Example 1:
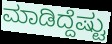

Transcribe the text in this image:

ಮಾಡಿದ್ದೆಷ್ಟು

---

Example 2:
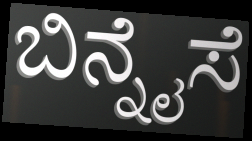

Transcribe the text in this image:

ಬಿನ್ನೈಸೆ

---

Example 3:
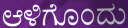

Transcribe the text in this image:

ಆಳಿಗೊಂದು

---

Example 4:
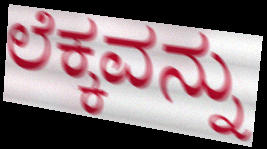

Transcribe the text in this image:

ಲೆಕ್ಕವನ್ನು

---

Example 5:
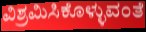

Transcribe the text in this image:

ವಿಶ್ರಮಿಸಿಕೊಳ್ಳುವಂತೆ